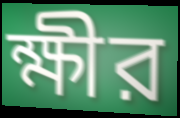
ক্ষীর